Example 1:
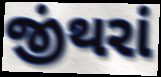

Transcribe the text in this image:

જીંથરાં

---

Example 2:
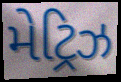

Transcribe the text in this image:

મેટ્રિઝ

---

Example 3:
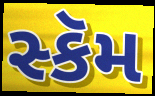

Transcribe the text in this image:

સ્કૅમ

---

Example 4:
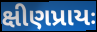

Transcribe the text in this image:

ક્ષીણપ્રાયઃ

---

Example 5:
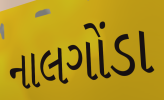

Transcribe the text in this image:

નાલગોંડા